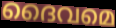
ദൈവമെ